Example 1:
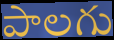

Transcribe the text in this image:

పాలగు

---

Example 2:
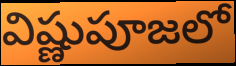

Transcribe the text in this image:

విష్ణుపూజలో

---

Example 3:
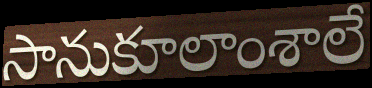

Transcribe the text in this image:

సానుకూలాంశాలే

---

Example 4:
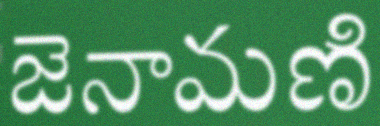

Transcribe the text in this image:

జెనామణి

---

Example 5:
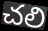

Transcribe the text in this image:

చలి